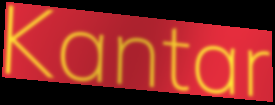
Kantar